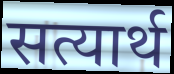
सत्यार्थ